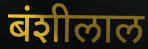
बंशीलाल